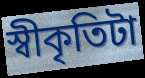
স্বীকৃতিটা